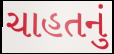
ચાહતનું